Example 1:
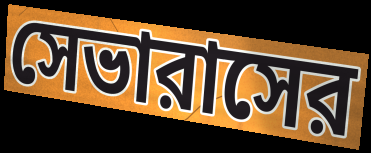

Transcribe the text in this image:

সেভারাসের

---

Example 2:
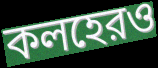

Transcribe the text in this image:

কলহেরও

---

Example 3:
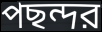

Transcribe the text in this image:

পছন্দর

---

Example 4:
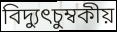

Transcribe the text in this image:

বিদ্যুৎচুম্বকীয়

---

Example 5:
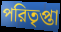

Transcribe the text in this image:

পরিতৃপ্তা